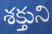
శక్తుని